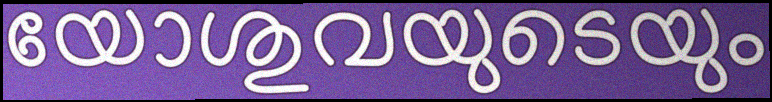
യോശുവയുടെയും